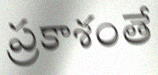
ప్రకాశంతే